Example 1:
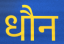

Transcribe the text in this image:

धौन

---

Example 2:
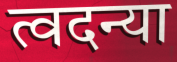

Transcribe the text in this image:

त्वदन्या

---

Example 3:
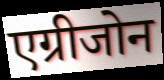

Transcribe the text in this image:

एग्रीजोन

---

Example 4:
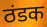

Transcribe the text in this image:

ठंडक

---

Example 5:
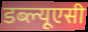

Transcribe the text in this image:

डब्ल्यूएसी